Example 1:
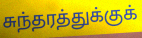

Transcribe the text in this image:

சுந்தரத்துக்குக்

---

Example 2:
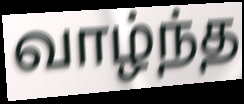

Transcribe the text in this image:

வாழ்ந்த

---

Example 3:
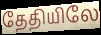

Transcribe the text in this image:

தேதியிலே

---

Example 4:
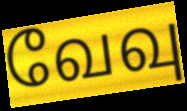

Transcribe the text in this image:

வேவு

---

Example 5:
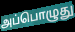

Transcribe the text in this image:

அப்பொழுது